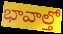
భావాల్తో